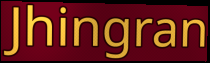
Jhingran